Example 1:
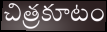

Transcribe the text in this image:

చిత్రకూటం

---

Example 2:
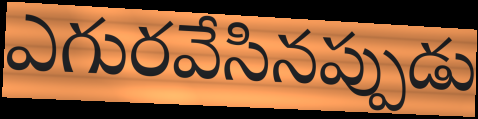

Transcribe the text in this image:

ఎగురవేసినప్పుడు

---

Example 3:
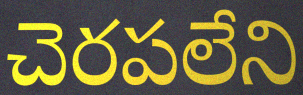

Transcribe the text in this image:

చెరపలేని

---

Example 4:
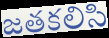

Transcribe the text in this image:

జతకలిసి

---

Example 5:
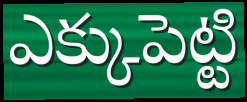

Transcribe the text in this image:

ఎక్కుపెట్టి